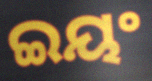
ଇୟଂ